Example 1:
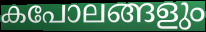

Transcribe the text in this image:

കപോലങ്ങളും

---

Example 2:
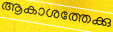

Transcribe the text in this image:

ആകാശത്തേക്കു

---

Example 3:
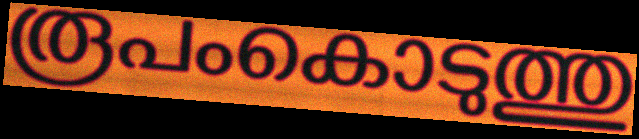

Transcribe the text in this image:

രൂപംകൊടുത്തു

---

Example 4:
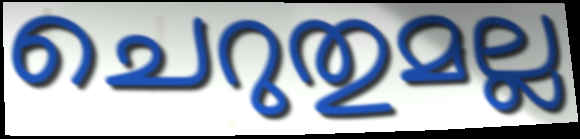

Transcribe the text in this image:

ചെറുതുമല്ല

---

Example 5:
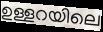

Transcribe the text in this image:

ഉള്ളറയിലെ